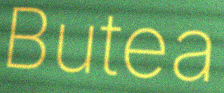
Butea